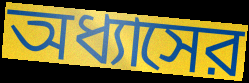
অধ্যাসের